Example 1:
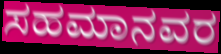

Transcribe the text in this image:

ಸಹಮಾನವರ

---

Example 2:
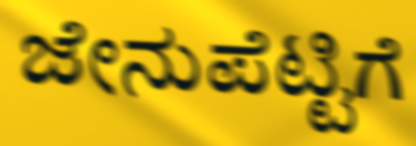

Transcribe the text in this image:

ಜೇನುಪೆಟ್ಟಿಗೆ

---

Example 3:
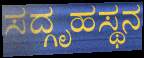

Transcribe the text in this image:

ಸದ್ಗೃಹಸ್ಥನ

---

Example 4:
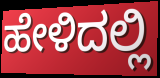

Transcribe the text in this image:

ಹೇಳಿದಲ್ಲಿ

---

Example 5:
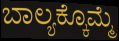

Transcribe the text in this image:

ಬಾಲ್ಯಕ್ಕೊಮ್ಮೆ